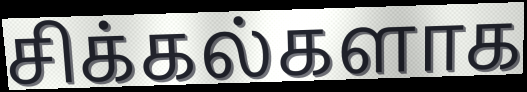
சிக்கல்களாக